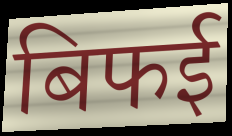
बिफई